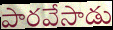
పారవేసాడు